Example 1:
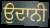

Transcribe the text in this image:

ਉਦਾਨੀ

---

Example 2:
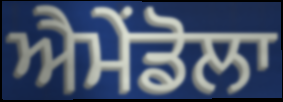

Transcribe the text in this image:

ਐਮੇਂਡੋਲਾ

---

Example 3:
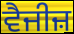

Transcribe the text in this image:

ਵੈਜੀਜ਼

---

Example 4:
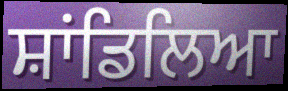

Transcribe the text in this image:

ਸ਼ਾਂਡਿਲਿਆ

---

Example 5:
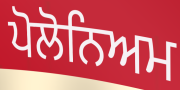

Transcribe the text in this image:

ਪੋਲੋਨਿਅਮ